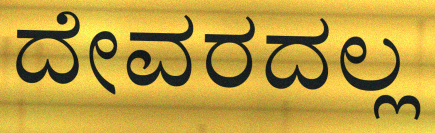
ದೇವರದಲ್ಲ